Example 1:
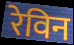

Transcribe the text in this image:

रेविन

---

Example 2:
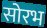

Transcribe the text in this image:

सोरभ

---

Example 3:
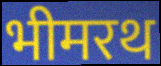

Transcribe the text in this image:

भीमरथ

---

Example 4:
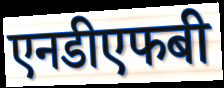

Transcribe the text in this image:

एनडीएफबी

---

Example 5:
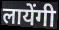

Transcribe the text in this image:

लायेंगी